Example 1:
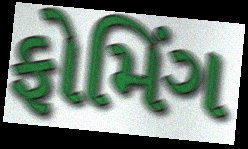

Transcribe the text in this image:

ફોમિંગ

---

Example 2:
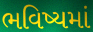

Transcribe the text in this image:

ભવિષ્યમાં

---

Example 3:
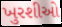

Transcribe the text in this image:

ખુરશીઓ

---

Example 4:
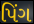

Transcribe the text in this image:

પિંગ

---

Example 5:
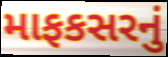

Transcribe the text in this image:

માફકસરનું